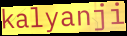
kalyanji